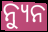
ନ୍ୟୁନ